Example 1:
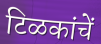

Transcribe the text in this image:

टिळकांचें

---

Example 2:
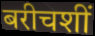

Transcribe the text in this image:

बरीचशीं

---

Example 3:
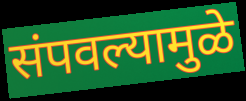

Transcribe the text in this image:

संपवल्यामुळे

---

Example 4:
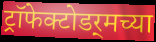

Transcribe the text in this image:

ट्रॉफेक्टोडर्मच्या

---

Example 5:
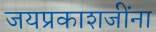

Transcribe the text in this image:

जयप्रकाशजींना